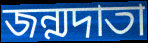
জন্মদাতা